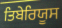
ਤਿਬੇਰਿਯੂਸ